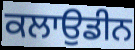
ਕਲਾਉਡੀਨ